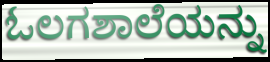
ಓಲಗಶಾಲೆಯನ್ನು